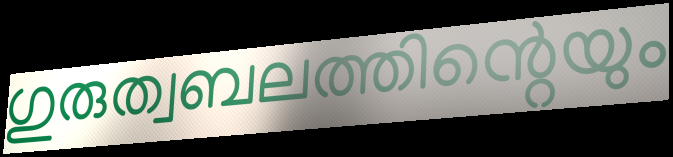
ഗുരുത്വബലത്തിന്റെയും